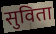
सुविता